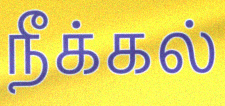
நீக்கல்